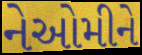
નેઓમીને